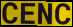
CENC